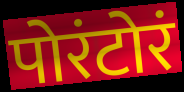
पोरंटोरं